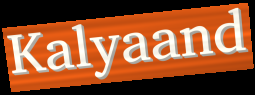
Kalyaand